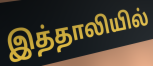
இத்தாலியில்